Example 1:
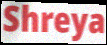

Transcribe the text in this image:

Shreya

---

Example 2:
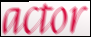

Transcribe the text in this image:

actor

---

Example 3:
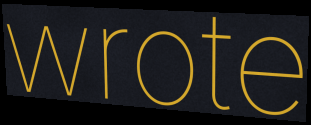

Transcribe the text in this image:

wrote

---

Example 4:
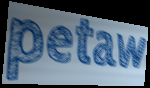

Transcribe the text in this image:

petaw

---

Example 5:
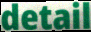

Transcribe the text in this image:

detail